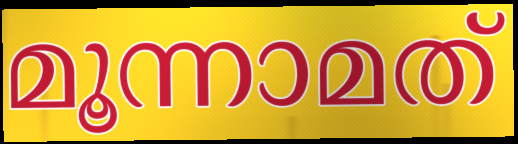
മൂന്നാമത്